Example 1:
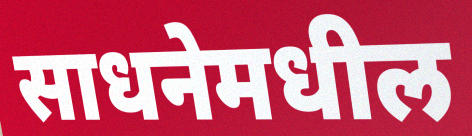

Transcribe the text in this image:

साधनेमधील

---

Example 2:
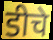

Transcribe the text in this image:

डीचे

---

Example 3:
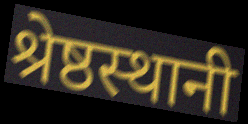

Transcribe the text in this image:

श्रेष्ठस्थानी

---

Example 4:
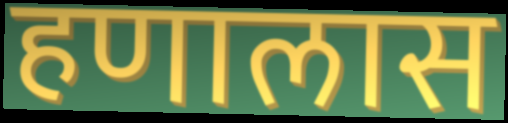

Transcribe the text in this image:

हणालास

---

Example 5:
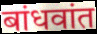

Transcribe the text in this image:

बांधवांत